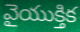
వైయుక్తిక